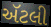
ઍટલી